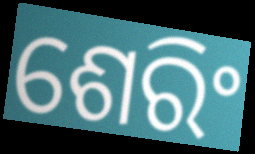
ଶେରିଂ